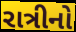
રાત્રીનો